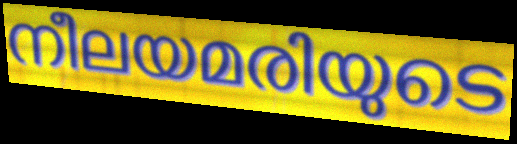
നീലയമരിയുടെ